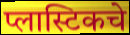
प्लास्टिकचे